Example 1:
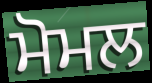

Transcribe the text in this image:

ਮੋਮਲ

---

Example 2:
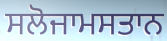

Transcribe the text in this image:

ਸਲੋਜਾਮਸਤਾਨ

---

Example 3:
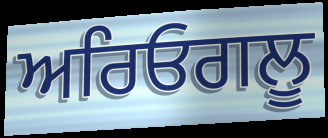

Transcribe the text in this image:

ਅਰਿਓਗਲੂ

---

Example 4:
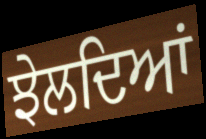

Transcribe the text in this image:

ਝੇਲਦਿਆਂ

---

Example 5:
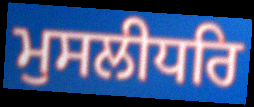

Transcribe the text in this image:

ਮੁਸਲੀਧਰਿ